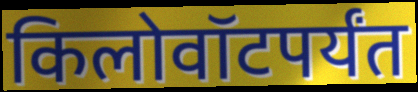
किलोवॉटपर्यंत